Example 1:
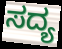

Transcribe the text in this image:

ಸದ್ಯ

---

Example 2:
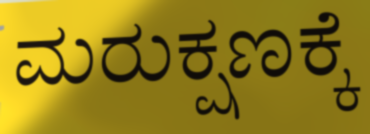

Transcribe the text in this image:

ಮರುಕ್ಷಣಕ್ಕೆ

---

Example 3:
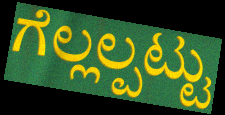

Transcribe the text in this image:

ಗೆಲ್ಲಲ್ಪಟ್ಟು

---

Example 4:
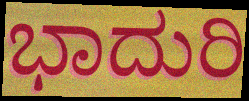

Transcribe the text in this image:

ಭಾದುರಿ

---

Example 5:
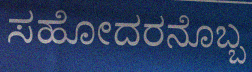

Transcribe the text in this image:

ಸಹೋದರನೊಬ್ಬ